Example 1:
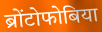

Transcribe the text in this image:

ब्रोंटोफोबिया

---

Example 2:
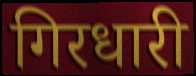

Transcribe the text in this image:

गिरधारी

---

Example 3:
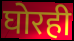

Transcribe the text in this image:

घोरही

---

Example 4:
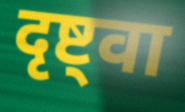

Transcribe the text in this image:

दृष्ट्वा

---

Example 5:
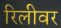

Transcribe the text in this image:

रिलीवर